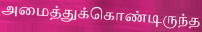
அமைத்துக்கொண்டிருந்த